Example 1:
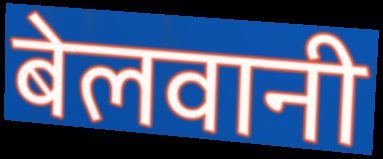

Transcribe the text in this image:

बेलवानी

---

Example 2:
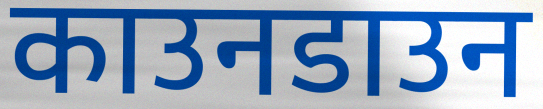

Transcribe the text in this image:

काउनडाउन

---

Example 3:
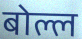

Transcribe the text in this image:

बोल्ल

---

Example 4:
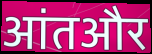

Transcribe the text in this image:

आंतऔर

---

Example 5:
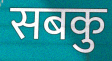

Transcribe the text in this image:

सबकु